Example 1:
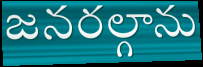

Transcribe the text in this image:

జనరల్గాను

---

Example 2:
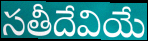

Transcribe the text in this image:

సతీదేవియే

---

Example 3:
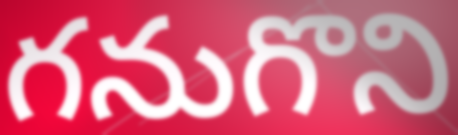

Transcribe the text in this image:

గనుగొని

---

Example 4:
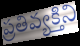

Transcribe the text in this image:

ప్రతివ్యక్తిని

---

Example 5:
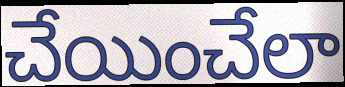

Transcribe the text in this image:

చేయించేలా